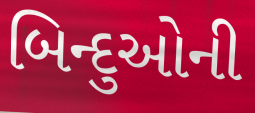
બિન્દુઓની